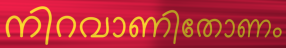
നിറവാണിതോണം